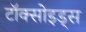
टॉक्सोइड्स